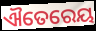
ଐତେରେୟ